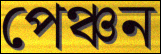
পেঞ্চন